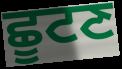
ਛੂਟਣ